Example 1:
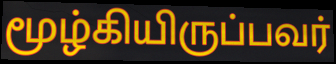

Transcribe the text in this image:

மூழ்கியிருப்பவர்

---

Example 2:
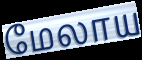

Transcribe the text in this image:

மேலாய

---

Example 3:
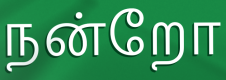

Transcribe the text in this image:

நன்றோ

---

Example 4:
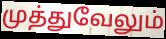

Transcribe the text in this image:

முத்துவேலும்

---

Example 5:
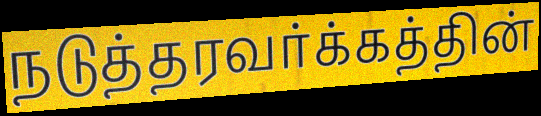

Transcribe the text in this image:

நடுத்தரவர்க்கத்தின்